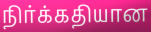
நிர்க்கதியான